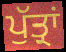
ਪੁੱਤ੍ਰਾਂ